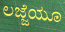
ಲಜ್ಜೆಯೂ